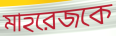
মাহরেজকে